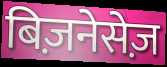
बिज़नेसेज़